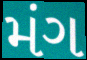
મંગ